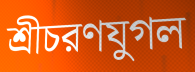
শ্রীচরণযুগল